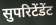
सुपरिटेंडेंट